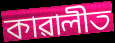
কাৱালীত